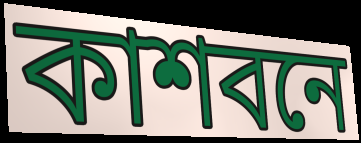
কাশবনে